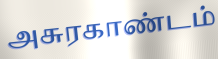
அசுரகாண்டம்